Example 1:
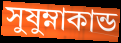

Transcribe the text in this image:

সুষুম্নাকান্ড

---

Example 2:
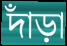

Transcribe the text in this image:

দাঁড়া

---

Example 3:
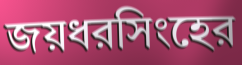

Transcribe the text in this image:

জয়ধরসিংহের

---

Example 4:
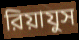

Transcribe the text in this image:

রিয়াযুস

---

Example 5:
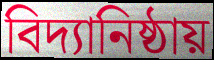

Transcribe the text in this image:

বিদ্যানিষ্ঠায়